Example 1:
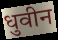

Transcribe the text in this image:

धुवीन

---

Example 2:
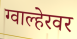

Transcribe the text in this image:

ग्वाल्हेरवर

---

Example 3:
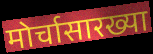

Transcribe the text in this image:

मोर्चासारख्या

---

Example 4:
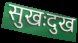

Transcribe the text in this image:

सुखःदुख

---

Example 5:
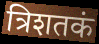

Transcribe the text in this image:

त्रिशतकं